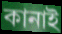
কানাই